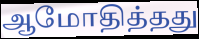
ஆமோதித்தது